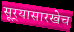
सूर्यासारखेच